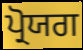
ਪ੍ਰੋਯਗ